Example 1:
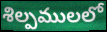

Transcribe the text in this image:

శిల్పములలో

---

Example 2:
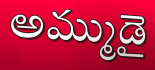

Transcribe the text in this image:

అమ్ముడై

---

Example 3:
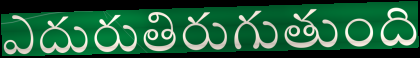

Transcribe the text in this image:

ఎదురుతిరుగుతుంది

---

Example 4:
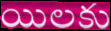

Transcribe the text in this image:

యిలకు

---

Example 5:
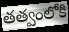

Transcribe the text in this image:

తత్వంలోకి